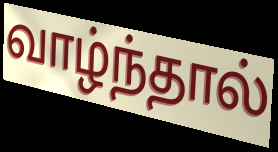
வாழ்ந்தால்